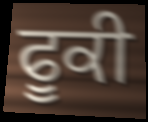
ਫੂਕੀ